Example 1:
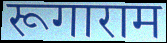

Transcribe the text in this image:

रूगाराम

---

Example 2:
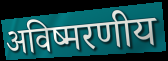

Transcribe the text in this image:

अविष्मरणीय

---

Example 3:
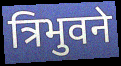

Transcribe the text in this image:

त्रिभुवने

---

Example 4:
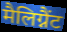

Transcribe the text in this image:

मैलिग्नैंट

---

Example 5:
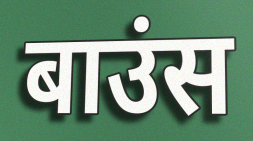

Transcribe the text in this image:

बाउंस